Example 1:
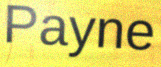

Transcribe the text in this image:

Payne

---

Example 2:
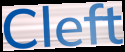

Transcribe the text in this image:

Cleft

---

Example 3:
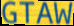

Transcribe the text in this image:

GTAW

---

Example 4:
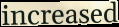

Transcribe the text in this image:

increased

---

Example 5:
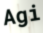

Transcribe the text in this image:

Agi